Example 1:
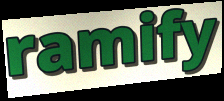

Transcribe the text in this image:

ramify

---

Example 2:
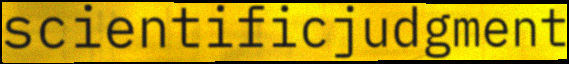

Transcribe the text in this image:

scientificjudgment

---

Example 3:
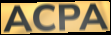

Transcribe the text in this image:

ACPA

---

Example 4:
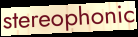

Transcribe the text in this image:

stereophonic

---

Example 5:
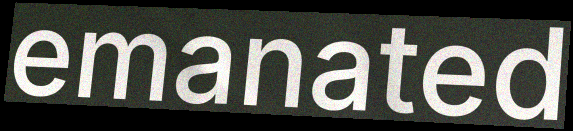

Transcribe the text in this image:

emanated